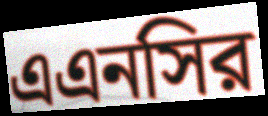
এএনসির